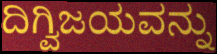
ದಿಗ್ವಿಜಯವನ್ನು